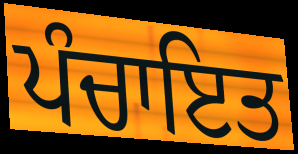
ਪੰਚਾਇਤ